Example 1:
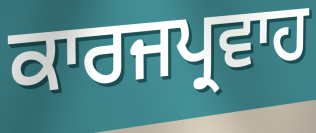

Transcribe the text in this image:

ਕਾਰਜਪ੍ਰਵਾਹ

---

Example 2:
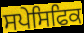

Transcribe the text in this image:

ਸਪੇਸਿਫਿਕ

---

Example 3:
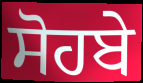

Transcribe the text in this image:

ਸੋਹਬੇ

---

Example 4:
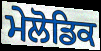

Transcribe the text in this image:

ਮੇਲੋਡਿਕ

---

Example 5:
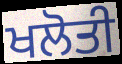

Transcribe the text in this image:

ਖਲੋਤੀ